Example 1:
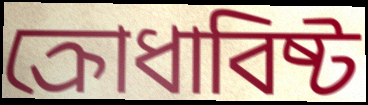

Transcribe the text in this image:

ক্রোধাবিষ্ট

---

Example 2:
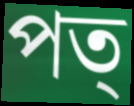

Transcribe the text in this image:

পত্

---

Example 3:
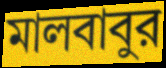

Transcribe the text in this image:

মালবাবুর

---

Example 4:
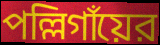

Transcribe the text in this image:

পল্লিগাঁয়ের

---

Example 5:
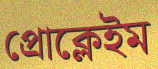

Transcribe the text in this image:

প্রোক্লেইম